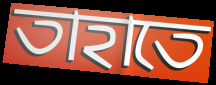
তাহাতে